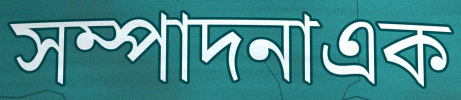
সম্পাদনাএক